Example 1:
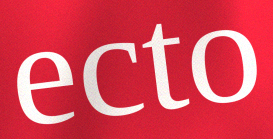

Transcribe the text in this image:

ecto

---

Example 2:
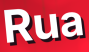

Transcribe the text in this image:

Rua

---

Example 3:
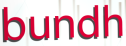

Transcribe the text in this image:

bundh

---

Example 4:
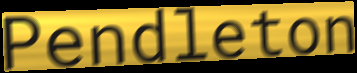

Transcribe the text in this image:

Pendleton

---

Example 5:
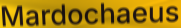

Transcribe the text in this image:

Mardochaeus